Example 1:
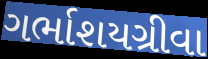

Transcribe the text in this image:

ગર્ભાશયગ્રીવા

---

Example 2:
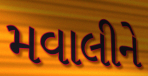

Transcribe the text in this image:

મવાલીને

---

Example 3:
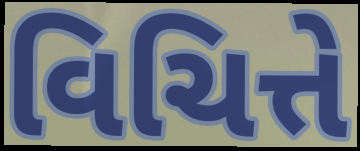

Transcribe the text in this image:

વિચિત્તે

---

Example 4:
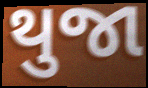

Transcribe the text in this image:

થુજા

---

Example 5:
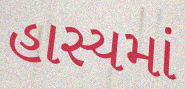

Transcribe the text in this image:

હાસ્યમાં